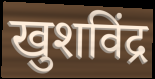
खुशविंद्र